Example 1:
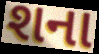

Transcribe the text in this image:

શના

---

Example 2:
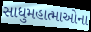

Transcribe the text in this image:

સાધુમહાત્માઓના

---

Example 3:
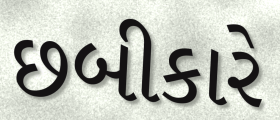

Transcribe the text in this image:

છબીકારે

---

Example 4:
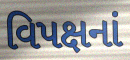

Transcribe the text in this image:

વિપક્ષનાં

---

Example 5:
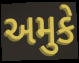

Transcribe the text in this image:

અમુકે